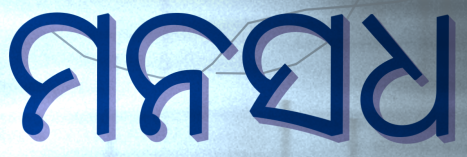
ମନସଧ